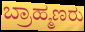
ಬ್ರಾಹ್ಮಣರು